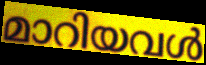
മാറിയവൾ